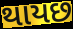
થાયછ